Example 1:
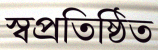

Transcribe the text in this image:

স্বপ্রতিষ্ঠিত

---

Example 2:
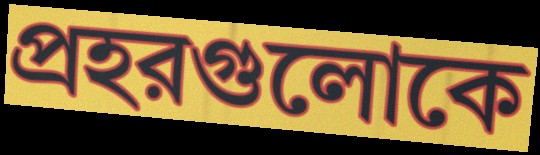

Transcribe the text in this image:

প্রহরগুলোকে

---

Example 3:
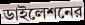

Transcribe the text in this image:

ডাইলেশনের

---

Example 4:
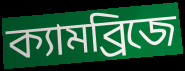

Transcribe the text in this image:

ক্যামব্রিজে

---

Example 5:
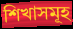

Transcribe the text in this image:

শিখাসমূহ